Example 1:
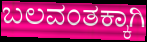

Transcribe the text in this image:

ಬಲವಂತಕ್ಕಾಗಿ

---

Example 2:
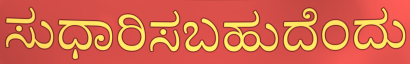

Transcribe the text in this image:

ಸುಧಾರಿಸಬಹುದೆಂದು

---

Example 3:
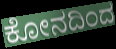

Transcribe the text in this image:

ಕೋನದಿಂದ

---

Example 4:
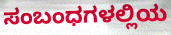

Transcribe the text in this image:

ಸಂಬಂಧಗಳಲ್ಲಿಯ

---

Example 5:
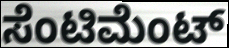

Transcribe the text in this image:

ಸೆಂಟಿಮೆಂಟ್